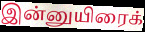
இன்னுயிரைக்